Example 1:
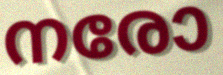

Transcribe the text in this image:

നരോ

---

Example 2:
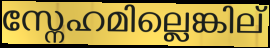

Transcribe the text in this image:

സ്നേഹമില്ലെങ്കില്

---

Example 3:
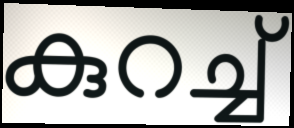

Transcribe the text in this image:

കുറച്ച്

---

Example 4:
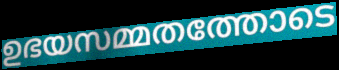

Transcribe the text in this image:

ഉഭയസമ്മതത്തോടെ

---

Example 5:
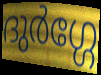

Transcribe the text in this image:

ദുർഗ്ഗേ